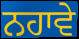
ਨਹਾਵੇ